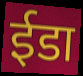
ईडा